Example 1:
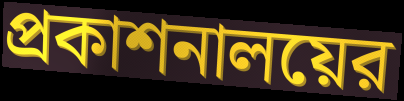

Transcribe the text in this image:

প্রকাশনালয়ের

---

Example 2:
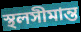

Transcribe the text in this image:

স্থলসীমান্ত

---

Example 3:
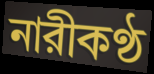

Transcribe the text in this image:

নারীকণ্ঠ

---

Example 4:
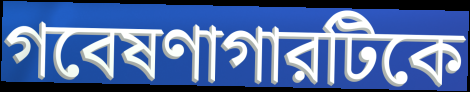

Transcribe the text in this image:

গবেষণাগারটিকে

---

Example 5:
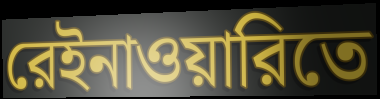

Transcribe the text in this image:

রেইনাওয়ারিতে